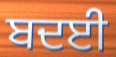
ਬਦਈ